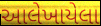
આલેખાયેલા